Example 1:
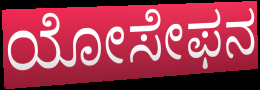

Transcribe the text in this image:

ಯೋಸೇಫನ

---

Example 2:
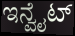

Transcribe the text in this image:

ಇನ್ವೈಟ್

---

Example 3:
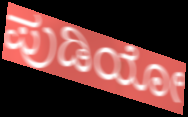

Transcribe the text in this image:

ಪುಡಿಯೋ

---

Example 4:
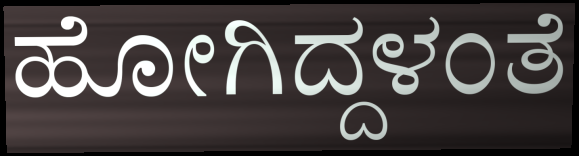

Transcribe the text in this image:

ಹೋಗಿದ್ದಳಂತೆ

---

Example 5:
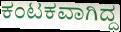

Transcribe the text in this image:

ಕಂಟಕವಾಗಿದ್ದ